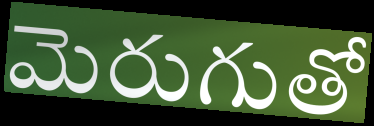
మెరుగుతో